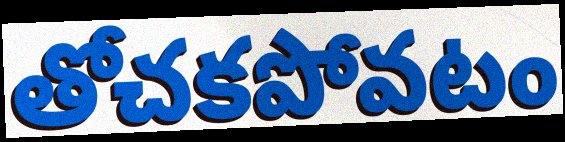
తోచకపోవటం